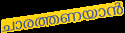
ചാരത്തണയാൻ